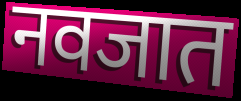
नवजात